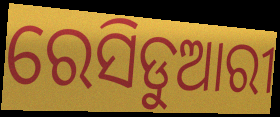
ରେସିଡୁଆରୀ